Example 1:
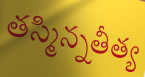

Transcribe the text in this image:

తస్మిన్నతీత్య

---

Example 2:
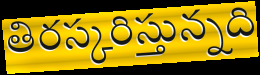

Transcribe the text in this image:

తిరస్కరిస్తున్నది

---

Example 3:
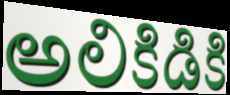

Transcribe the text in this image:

అలికిడికి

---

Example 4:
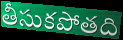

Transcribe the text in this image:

తీసుకపోతది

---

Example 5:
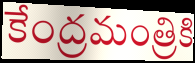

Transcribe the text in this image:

కేంద్రమంత్రికి